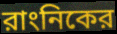
রাংনিকের